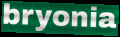
bryonia